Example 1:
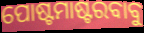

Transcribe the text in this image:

ପୋଷ୍ଟମାଷ୍ଟରବାବୁ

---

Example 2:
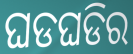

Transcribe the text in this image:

ଘଡଘଡିର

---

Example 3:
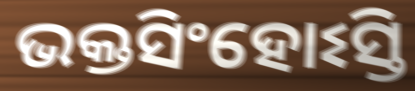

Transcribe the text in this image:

ଭକ୍ତସିଂହୋଽସ୍ତି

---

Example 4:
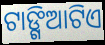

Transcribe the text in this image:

ଟାଙ୍ଗିଆଟିଏ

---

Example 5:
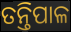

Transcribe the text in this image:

ତନ୍ତିପାଳ